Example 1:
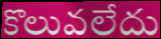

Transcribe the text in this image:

కొలువలేదు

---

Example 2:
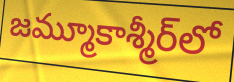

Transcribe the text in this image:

జమ్మూకాశ్మీర్‌లో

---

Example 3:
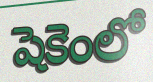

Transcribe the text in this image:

షెకెంలో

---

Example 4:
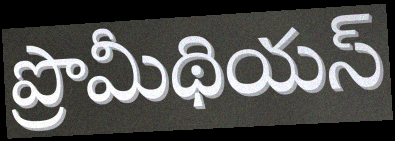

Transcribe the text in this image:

ప్రొమీథియస్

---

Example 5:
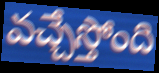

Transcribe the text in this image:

వచ్చేస్తోంది